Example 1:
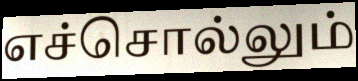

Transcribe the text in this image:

எச்சொல்லும்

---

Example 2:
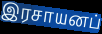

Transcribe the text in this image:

இரசாயனப்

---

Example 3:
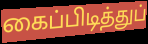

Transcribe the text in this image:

கைப்பிடித்துப்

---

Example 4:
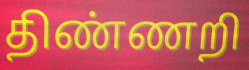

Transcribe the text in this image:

திண்ணறி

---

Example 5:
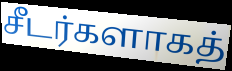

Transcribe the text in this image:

சீடர்களாகத்